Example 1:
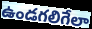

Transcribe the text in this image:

ఉండగలిగేలా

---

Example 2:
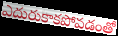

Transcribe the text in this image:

ఎదురుకాకపోవడంతో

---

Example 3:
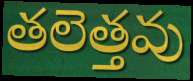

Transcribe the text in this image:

తలెత్తవు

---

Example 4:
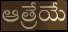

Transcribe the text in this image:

ఆత్రేయే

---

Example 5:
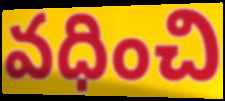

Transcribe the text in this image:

వధించి